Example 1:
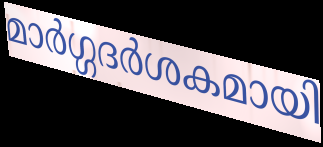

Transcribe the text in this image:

മാർഗ്ഗദർശകമായി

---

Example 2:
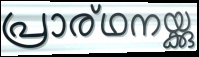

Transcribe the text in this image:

പ്രാര്ഥനയ്ക്കു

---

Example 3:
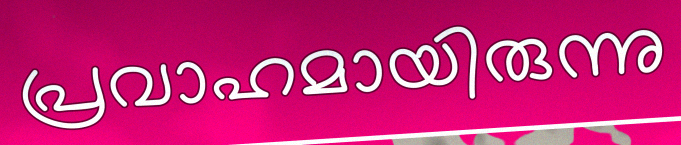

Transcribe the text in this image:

പ്രവാഹമായിരുന്നു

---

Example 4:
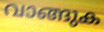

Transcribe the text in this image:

വാങ്ങുക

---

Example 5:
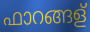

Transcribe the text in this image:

ഫാറങ്ങള്